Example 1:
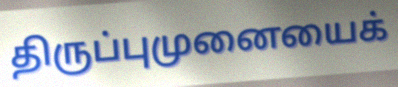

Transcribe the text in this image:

திருப்புமுனையைக்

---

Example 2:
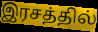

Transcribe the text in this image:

இரசத்தில்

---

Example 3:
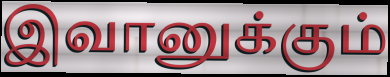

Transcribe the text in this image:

இவானுக்கும்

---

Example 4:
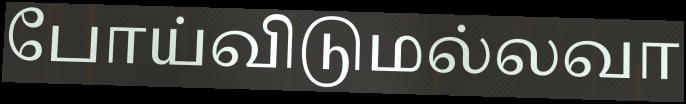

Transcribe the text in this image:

போய்விடுமல்லவா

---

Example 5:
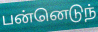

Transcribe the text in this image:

பன்னெடுந்